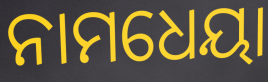
ନାମଧେୟା